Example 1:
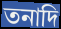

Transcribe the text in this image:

তনাদি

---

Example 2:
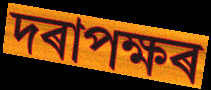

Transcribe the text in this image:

দৰাপক্ষৰ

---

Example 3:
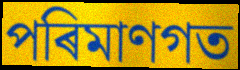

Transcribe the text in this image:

পৰিমাণগত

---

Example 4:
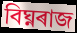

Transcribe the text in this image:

বিঘ্নৰাজ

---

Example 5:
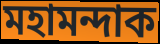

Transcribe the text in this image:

মহামন্দাক